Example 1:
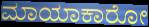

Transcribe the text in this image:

ಮಾಯಾಕಾರೋ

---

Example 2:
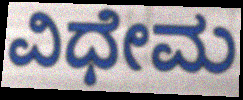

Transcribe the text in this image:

ವಿಧೇಮ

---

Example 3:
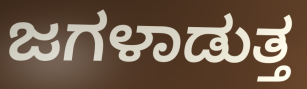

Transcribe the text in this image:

ಜಗಳಾಡುತ್ತ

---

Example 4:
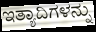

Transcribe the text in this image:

ಇತ್ಯಾದಿಗಳನ್ನು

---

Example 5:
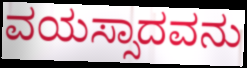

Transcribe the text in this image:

ವಯಸ್ಸಾದವನು